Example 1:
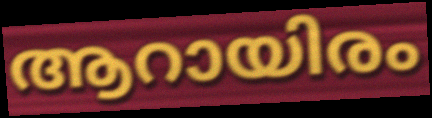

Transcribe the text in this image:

ആറായിരം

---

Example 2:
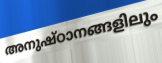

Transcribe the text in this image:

അനുഷ്ഠാനങ്ങളിലും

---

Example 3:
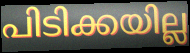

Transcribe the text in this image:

പിടിക്കയില്ല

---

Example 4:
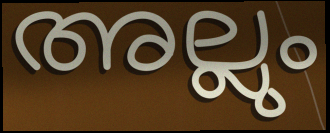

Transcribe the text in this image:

അല്ലും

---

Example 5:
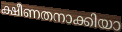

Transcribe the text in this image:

ക്ഷീണതനാക്കിയാ